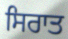
ਸਿਰਾਤ